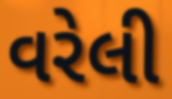
વરેલી